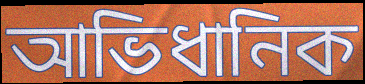
আভিধানিক